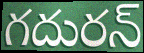
గదురన్